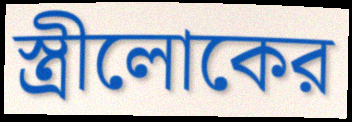
স্ত্রীলোকের